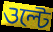
ওল্টে